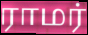
ராமர்